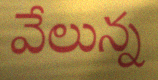
వేలున్న